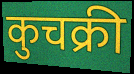
कुचक्री